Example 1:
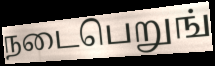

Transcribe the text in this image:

நடைபெறுங்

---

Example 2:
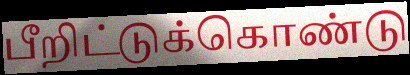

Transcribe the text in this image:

பீறிட்டுக்கொண்டு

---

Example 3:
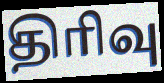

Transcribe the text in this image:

திரிவு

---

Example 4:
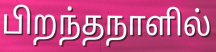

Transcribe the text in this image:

பிறந்தநாளில்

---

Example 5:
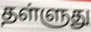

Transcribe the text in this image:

தள்ளுது